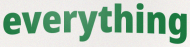
everything